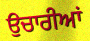
ਉਚਾਰੀਆਂ